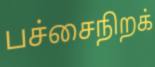
பச்சைநிறக்